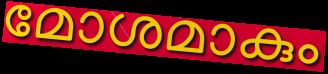
മോശമാകും